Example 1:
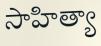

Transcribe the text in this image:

సాహిత్యా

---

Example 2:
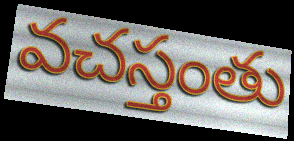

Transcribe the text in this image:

వచస్తంతు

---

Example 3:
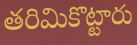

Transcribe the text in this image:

తరిమికొట్టారు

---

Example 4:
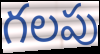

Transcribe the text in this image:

గలపు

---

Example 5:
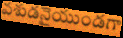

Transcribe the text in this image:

వశుడనైయుండగా